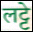
लट्टे